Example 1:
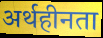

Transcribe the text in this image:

अर्थहीनता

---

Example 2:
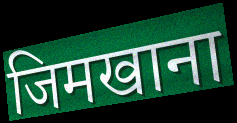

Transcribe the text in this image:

जिमखाना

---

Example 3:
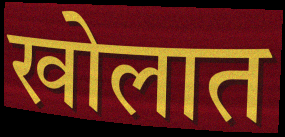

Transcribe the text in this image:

खोलात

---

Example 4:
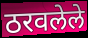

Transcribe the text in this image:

ठरवलेले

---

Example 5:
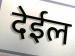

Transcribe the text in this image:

देईल